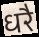
धरै